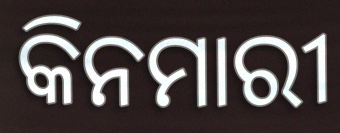
କିନମାରୀ